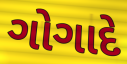
ગોગાદે